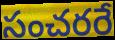
సంచరరే